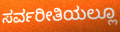
ಸರ್ವರೀತಿಯಲ್ಲೂ